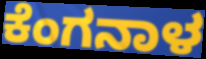
ಕೆಂಗನಾಳ